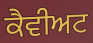
ਕੈਵੀਅਟ